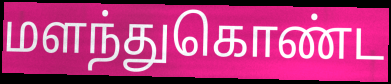
மளந்துகொண்ட